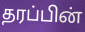
தரப்பின்